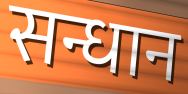
सन्धान